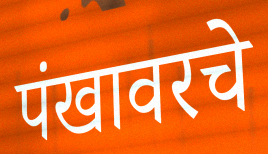
पंखावरचे